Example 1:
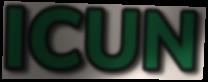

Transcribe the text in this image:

ICUN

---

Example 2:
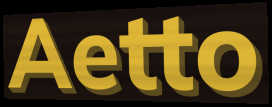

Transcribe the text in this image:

Aetto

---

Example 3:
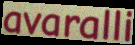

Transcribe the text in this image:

avaralli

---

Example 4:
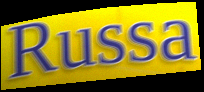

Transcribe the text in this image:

Russa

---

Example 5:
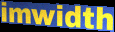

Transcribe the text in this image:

imwidth